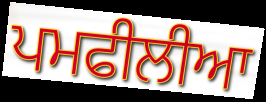
ਪਮਫੀਲੀਆ